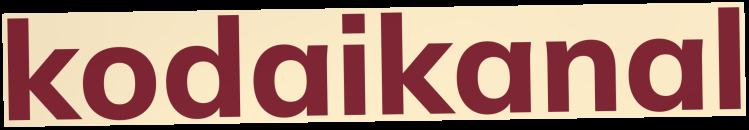
kodaikanal